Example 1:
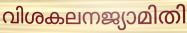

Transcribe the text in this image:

വിശകലനജ്യാമിതി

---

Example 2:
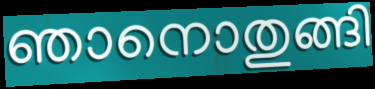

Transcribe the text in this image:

ഞാനൊതുങ്ങി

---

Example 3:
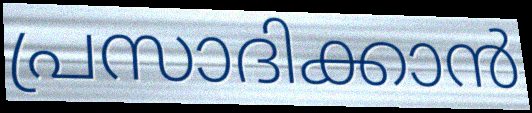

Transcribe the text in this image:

പ്രസാദിക്കാൻ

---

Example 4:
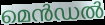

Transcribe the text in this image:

മെൻഡൽ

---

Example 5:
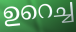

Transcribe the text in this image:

ഉറെച്ച